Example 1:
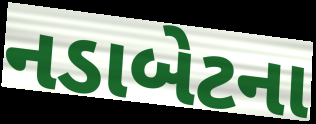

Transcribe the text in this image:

નડાબેટના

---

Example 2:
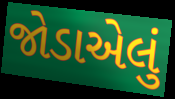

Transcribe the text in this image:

જોડાએલું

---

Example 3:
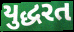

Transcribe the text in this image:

યુદ્ધરત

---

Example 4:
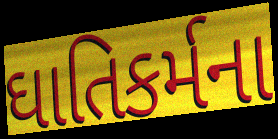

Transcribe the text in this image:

ઘાતિકર્મના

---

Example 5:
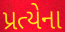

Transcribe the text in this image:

પ્રત્યેના